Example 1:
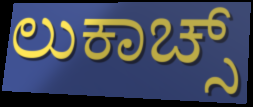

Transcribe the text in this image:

ಲುಕಾಚ್ಸ್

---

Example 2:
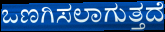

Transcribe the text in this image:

ಒಣಗಿಸಲಾಗುತ್ತದೆ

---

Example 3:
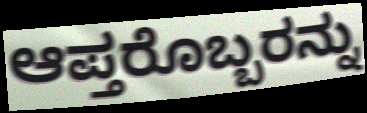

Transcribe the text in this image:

ಆಪ್ತರೊಬ್ಬರನ್ನು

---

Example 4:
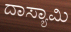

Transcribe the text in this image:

ದಾಸ್ಯಾಮಿ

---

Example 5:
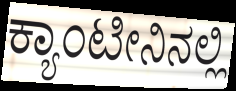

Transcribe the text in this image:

ಕ್ಯಾಂಟೀನಿನಲ್ಲಿ